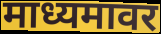
माध्यमावर